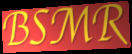
BSMR